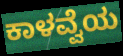
ಕಾಳವ್ವೆಯ